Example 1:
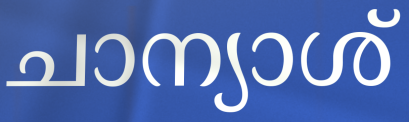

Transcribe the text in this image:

ചാന്യാശ്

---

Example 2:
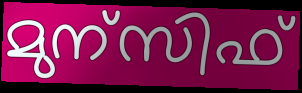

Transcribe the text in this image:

മുന്സിഫ്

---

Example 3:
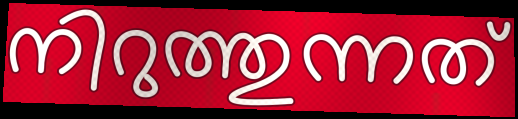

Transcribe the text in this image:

നിറുത്തുന്നത്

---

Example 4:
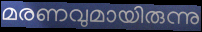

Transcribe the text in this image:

മരണവുമായിരുന്നു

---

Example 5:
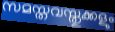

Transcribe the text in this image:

സമസ്തവസ്തുക്കളും